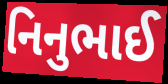
નિનુભાઈ